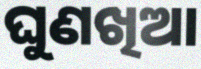
ଘୁଣଖିଆ